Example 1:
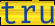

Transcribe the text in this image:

tru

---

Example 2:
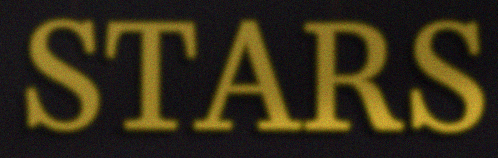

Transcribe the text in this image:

STARS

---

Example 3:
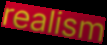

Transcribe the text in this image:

realism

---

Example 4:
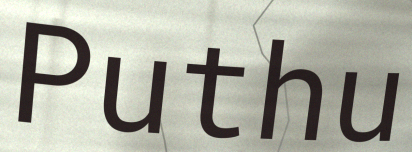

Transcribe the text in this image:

Puthu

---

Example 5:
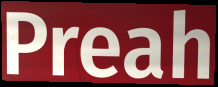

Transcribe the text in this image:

Preah